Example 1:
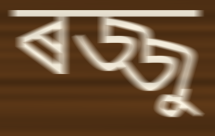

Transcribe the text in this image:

ৰজ্জু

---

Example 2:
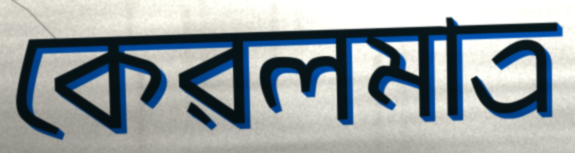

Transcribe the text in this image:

কেৱলমাত্ৰ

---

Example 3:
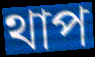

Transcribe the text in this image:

থাপ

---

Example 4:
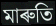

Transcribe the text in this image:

মাৰুতি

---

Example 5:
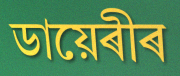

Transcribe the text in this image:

ডায়েৰীৰ